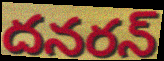
దనరన్